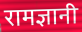
रामज्ञानी